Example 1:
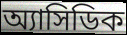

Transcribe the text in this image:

অ্যাসিডিক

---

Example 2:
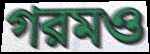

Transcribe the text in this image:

গরমও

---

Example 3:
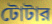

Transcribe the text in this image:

টোটার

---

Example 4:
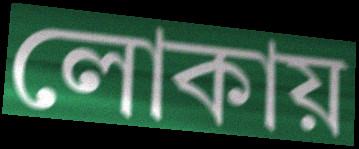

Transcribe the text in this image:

লোকায়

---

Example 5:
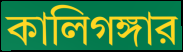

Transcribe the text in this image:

কালিগঙ্গার